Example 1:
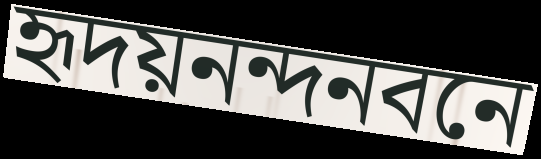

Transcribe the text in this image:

হৃদয়নন্দনবনে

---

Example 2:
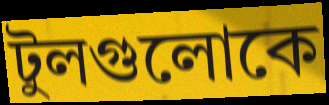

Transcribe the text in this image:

টুলগুলোকে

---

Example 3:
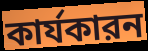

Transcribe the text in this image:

কার্যকারন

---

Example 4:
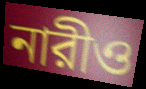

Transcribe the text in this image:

নারীও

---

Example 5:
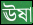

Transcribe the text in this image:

ঊষা